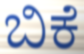
ಬಿಕೆ